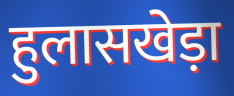
हुलासखेड़ा